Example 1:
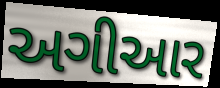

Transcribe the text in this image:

અગીઆર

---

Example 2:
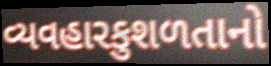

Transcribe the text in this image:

વ્યવહારકુશળતાનો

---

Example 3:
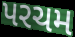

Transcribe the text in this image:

પરચમ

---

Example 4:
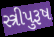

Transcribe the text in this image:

સ્ત્રીપુરૂષ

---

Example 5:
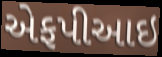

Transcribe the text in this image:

એફપીઆઇ